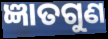
ଜ୍ଞାତଗୁଣ